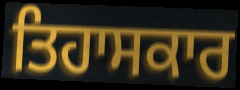
ਤਿਹਾਸਕਾਰ